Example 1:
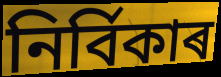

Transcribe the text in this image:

নিৰ্বিকাৰ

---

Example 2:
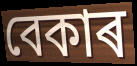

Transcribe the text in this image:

বেকাৰ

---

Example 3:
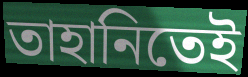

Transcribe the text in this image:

তাহানিতেই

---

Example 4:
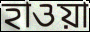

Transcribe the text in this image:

হাওয়া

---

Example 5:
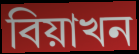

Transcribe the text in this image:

বিয়াখন